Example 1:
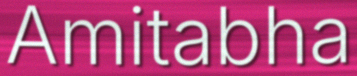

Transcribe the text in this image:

Amitabha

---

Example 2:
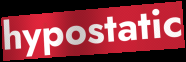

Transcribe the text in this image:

hypostatic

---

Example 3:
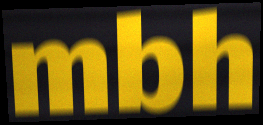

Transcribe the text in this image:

mbh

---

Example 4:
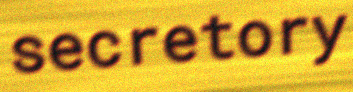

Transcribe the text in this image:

secretory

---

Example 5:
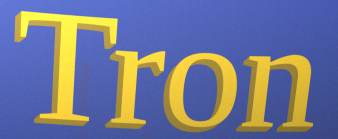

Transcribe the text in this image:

Tron